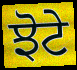
ਝੋਟੇ